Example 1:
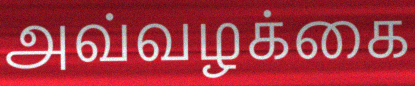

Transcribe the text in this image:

அவ்வழக்கை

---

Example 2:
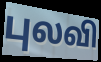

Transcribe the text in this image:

புலவி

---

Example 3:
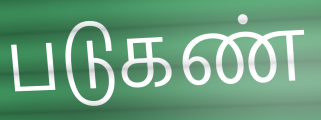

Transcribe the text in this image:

படுகண்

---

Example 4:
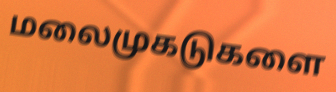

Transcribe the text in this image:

மலைமுகடுகளை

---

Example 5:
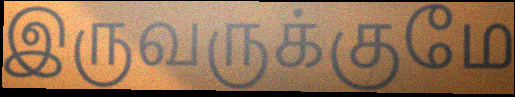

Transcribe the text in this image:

இருவருக்குமே